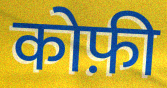
कोफ़ी